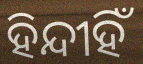
ହିନ୍ଦୀହିଁ